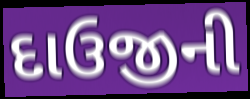
દાઉજીની